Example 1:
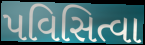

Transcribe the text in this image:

પવિસિત્વા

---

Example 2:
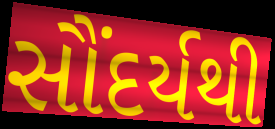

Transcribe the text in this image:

સૌંદર્યથી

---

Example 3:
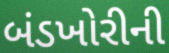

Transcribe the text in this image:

બંડખોરીની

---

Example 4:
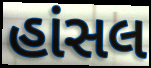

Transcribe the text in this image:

હાંસલ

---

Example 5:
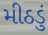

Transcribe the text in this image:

મીઠડું